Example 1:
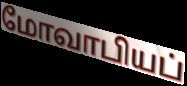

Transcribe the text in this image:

மோவாபியப்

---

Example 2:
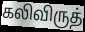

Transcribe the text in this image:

கலிவிருத்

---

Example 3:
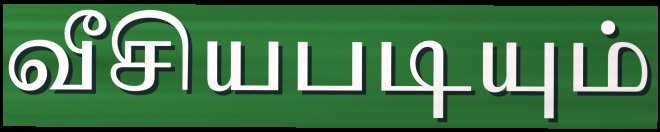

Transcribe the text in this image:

வீசியபடியும்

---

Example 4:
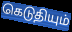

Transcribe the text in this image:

கெடுதியும்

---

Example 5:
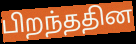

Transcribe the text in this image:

பிறந்ததின